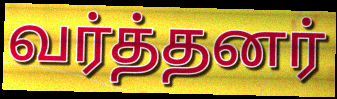
வர்த்தனர்